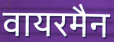
वायरमैन